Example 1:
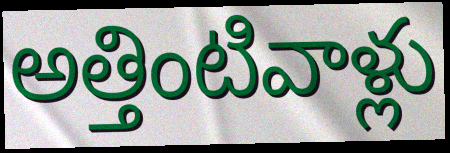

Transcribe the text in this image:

అత్తింటివాళ్లు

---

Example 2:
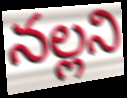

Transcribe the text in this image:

నల్లని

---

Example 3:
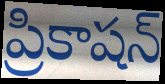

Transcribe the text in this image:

ప్రికాషన్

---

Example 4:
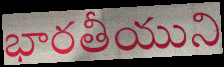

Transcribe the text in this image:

భారతీయుని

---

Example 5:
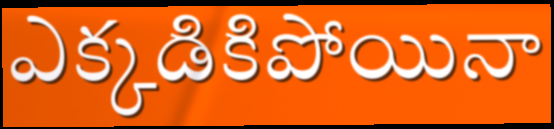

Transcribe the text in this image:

ఎక్కడికిపోయినా